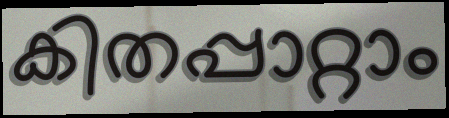
കിതപ്പാറ്റാം